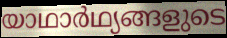
യാഥാർഥ്യങ്ങളുടെ